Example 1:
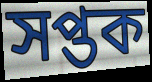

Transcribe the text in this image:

সপ্তক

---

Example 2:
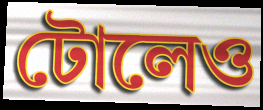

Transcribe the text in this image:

টোলেও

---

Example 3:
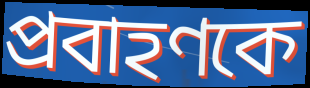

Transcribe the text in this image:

প্রবাহণকে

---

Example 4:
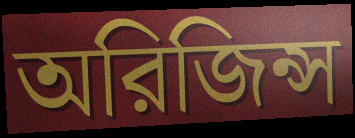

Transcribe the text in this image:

অরিজিন্স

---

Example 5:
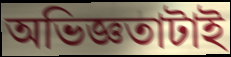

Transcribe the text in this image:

অভিজ্ঞতাটাই